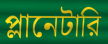
প্লানেটারি